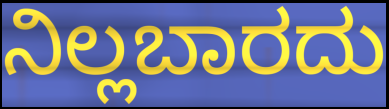
ನಿಲ್ಲಬಾರದು